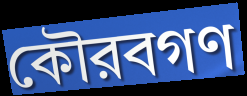
কৌরবগণ